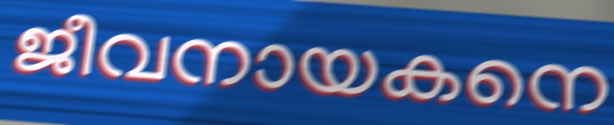
ജീവനായകനെ